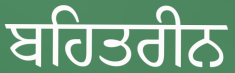
ਬਹਿਤਰੀਨ